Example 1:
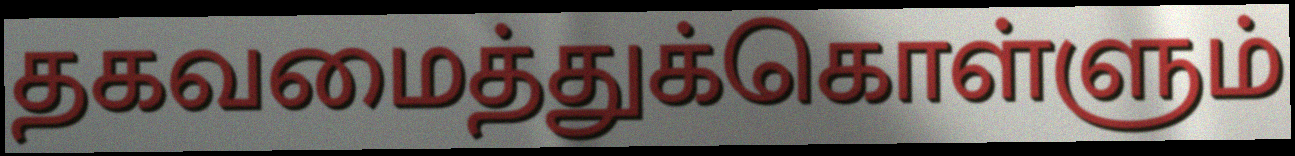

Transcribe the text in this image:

தகவமைத்துக்கொள்ளும்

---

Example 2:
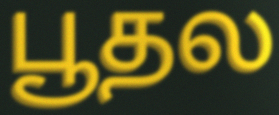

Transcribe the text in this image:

பூதல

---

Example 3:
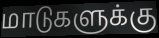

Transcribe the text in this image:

மாடுகளுக்கு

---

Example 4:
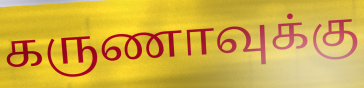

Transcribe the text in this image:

கருணாவுக்கு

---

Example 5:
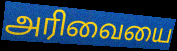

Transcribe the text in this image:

அரிவையை